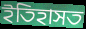
ইতিহাসত